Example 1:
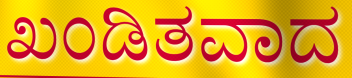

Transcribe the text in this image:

ಖಂಡಿತವಾದ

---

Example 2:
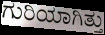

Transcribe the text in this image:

ಗುರಿಯಾಗಿತ್ತು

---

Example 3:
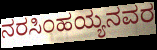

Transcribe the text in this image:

ನರಸಿಂಹಯ್ಯನವರ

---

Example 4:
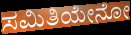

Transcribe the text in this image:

ಸಮಿತಿಯೇನೋ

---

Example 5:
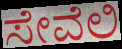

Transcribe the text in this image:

ಸೇವೆಲಿ